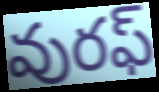
వురఫ్